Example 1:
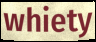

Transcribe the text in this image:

whiety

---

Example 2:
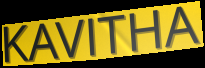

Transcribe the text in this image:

KAVITHA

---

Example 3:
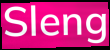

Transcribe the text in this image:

Sleng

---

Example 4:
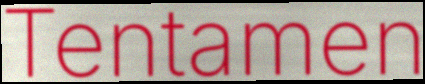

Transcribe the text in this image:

Tentamen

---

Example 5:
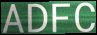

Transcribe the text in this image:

ADFC